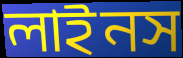
লাইনস